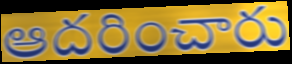
ఆదరించారు